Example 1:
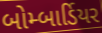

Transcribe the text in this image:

બોમ્બાર્ડિયર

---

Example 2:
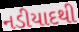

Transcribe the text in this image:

નડીયાદથી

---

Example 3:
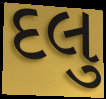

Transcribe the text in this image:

દલુ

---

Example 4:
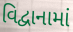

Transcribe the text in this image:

વિદ્વાનામાં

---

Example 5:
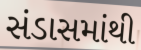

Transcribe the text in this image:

સંડાસમાંથી